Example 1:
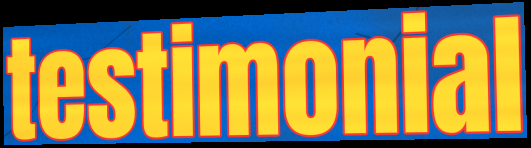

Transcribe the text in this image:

testimonial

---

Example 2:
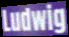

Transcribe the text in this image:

Ludwig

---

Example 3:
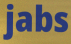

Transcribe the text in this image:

jabs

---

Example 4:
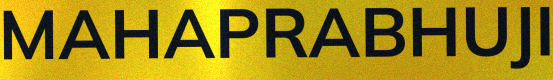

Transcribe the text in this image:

MAHAPRABHUJI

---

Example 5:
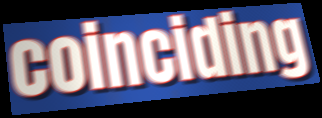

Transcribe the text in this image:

coinciding